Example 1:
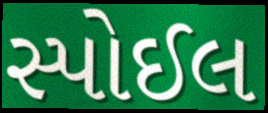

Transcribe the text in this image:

સ્પોઈલ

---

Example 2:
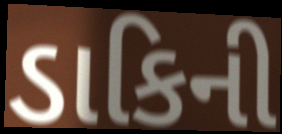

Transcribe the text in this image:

ડાકિની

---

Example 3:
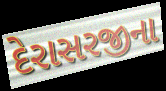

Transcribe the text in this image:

દેરાસરજીના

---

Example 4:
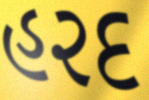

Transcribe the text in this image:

હરદ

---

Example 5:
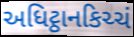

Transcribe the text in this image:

અધિટ્ઠાનકિચ્ચં